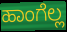
ಹಾಂಗೆಲ್ಲ